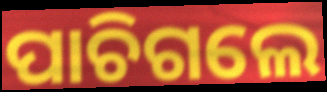
ପାଚିଗଲେ